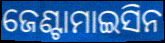
ଜେଣ୍ଟାମାଇସିନ